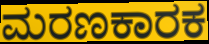
ಮರಣಕಾರಕ